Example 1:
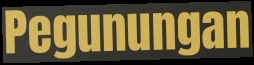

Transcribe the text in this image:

Pegunungan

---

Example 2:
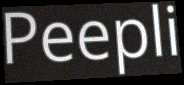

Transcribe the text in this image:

Peepli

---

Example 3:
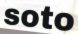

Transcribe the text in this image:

soto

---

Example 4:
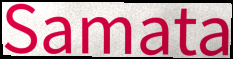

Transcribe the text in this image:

Samata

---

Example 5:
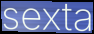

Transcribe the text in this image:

sexta